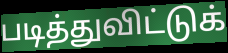
படித்துவிட்டுக்